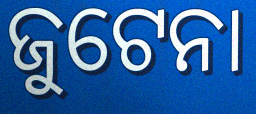
ଜୁଟେନା